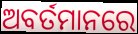
ଅବର୍ତମାନରେ